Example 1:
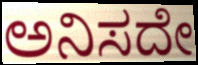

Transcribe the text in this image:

ಅನಿಸದೇ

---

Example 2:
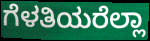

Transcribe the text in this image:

ಗೆಳತಿಯರೆಲ್ಲಾ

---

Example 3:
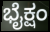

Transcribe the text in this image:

ಭೈಕ್ಷಂ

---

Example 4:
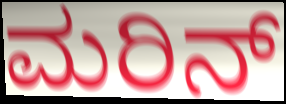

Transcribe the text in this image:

ಮರಿನ್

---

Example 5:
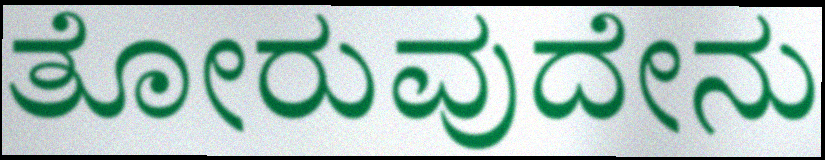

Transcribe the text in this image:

ತೋರುವುದೇನು